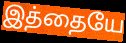
இத்தையே